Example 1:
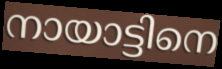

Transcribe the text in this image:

നായാട്ടിനെ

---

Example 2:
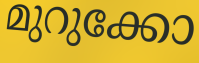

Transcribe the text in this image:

മുറുക്കോ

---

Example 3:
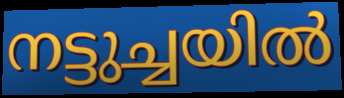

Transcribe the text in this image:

നട്ടുച്ചയിൽ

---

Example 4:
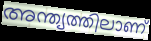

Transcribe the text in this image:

അന്ത്യത്തിലാണ്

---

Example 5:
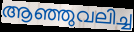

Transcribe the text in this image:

ആഞ്ഞുവലിച്ച